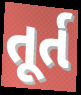
તૂર્ત